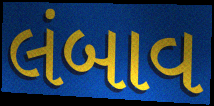
લંબાવ